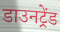
डाउनट्रेंड